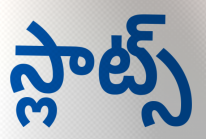
స్లాట్స్